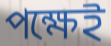
পক্ষেই